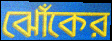
ঝোঁকের